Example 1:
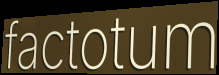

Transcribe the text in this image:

factotum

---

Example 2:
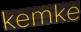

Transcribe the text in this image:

kemke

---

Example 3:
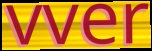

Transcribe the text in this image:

vver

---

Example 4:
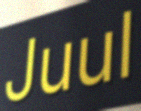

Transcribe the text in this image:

Juul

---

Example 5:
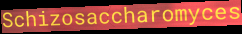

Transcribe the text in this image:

Schizosaccharomyces